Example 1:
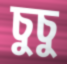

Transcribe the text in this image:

চুচু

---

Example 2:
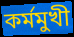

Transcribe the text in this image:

কর্মমুখী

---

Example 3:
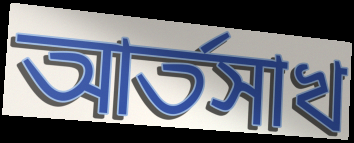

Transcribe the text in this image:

আর্তসাখ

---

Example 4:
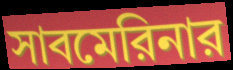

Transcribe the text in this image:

সাবমেরিনার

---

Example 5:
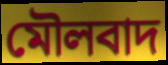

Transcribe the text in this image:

মৌলবাদ